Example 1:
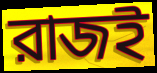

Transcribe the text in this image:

রাজই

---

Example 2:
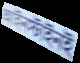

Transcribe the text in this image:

আইনস্টাইনই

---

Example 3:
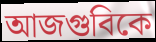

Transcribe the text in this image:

আজগুবিকে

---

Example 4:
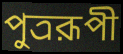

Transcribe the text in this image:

পুত্ররূপী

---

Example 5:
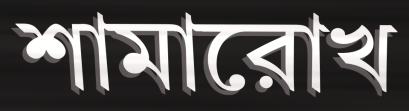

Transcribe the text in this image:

শামারোখ